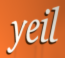
yeil